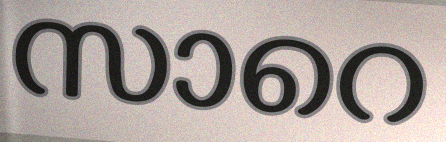
സാറെ